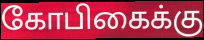
கோபிகைக்கு